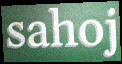
sahoj